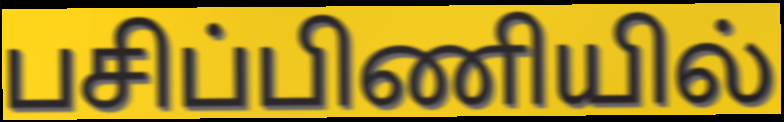
பசிப்பிணியில்